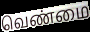
வெண்மை